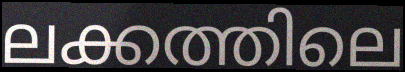
ലക്കത്തിലെ